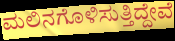
ಮಲಿನಗೊಳಿಸುತ್ತಿದ್ದೇವೆ